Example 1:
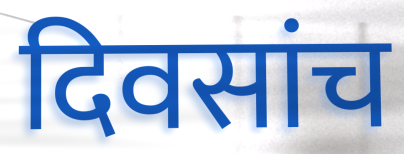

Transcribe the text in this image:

दिवसांच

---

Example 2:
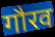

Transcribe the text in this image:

गौरव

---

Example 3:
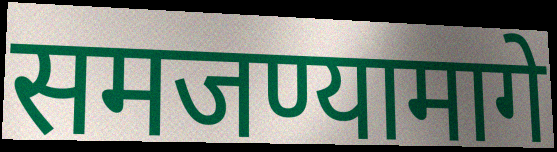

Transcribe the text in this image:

समजण्यामागे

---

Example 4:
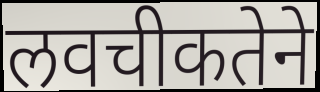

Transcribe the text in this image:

लवचीकतेने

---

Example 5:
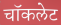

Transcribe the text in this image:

चॉकलेट